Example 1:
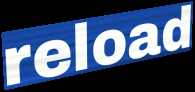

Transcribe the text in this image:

reload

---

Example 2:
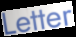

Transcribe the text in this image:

Letter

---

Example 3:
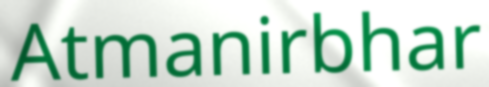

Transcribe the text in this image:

Atmanirbhar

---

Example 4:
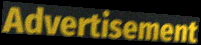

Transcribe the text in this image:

Advertisement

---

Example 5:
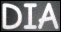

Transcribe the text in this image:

DIA